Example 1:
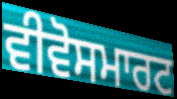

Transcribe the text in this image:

ਵੀਵੋਸਮਾਰਟ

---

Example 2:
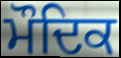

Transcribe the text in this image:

ਮੌਦਿਕ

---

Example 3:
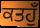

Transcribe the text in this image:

ਕਤਹੁਁ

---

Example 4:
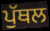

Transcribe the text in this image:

ਪੁੱਥਲ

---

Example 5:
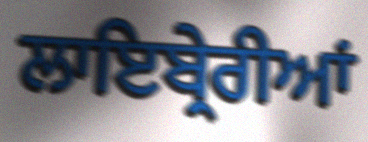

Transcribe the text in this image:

ਲਾਇਬ੍ਰੇਰੀਆਂ